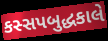
કસ્સપબુદ્ધકાલે